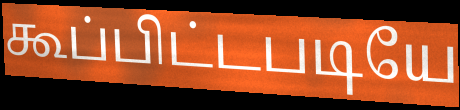
கூப்பிட்டபடியே